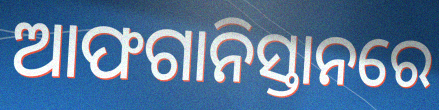
ଆଫଗାନିସ୍ତାନରେ